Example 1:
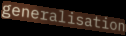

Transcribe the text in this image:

generalisation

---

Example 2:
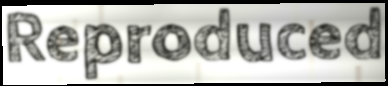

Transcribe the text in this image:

Reproduced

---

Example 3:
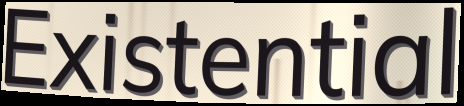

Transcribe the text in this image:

Existential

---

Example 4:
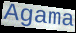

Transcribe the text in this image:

Agama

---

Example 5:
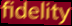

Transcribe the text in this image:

fidelity